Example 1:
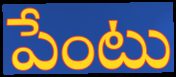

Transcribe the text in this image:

పేంటు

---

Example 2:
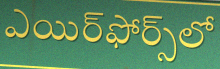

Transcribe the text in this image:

ఎయిర్‌ఫోర్స్‌లో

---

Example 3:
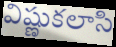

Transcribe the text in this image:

విష్ణుకలాసి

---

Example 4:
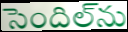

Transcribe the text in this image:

సెందిల్‌ను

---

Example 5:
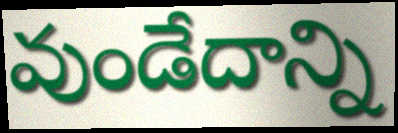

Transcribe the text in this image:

వుండేదాన్ని